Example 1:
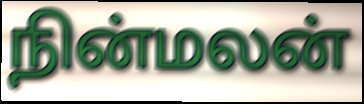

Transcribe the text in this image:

நின்மலன்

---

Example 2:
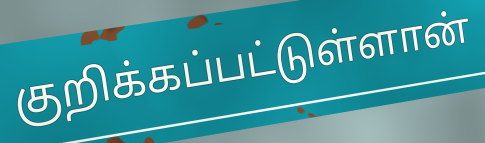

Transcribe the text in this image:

குறிக்கப்பட்டுள்ளான்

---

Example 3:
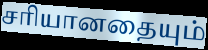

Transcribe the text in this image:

சரியானதையும்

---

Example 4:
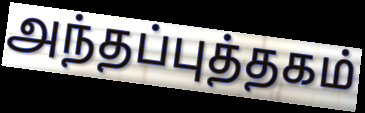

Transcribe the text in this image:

அந்தப்புத்தகம்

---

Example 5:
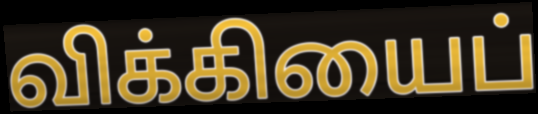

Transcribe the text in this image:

விக்கியைப்